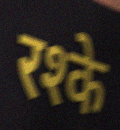
रश्के